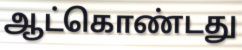
ஆட்கொண்டது